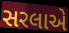
સરલાએ